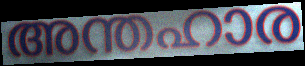
അന്തഹാര